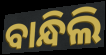
ବାନ୍ଧିଲି